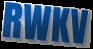
RWKV